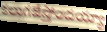
కలుగజేస్తోందయ్యా